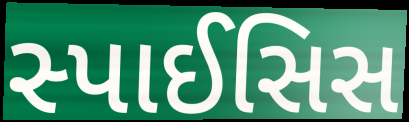
સ્પાઈસિસ